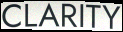
CLARITY